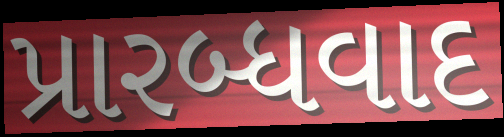
પ્રારબ્ધવાદ